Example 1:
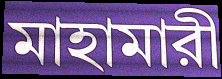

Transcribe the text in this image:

মাহামারী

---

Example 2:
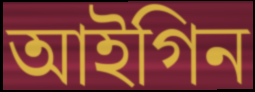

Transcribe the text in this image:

আইগিন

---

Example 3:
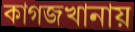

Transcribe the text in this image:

কাগজখানায়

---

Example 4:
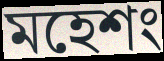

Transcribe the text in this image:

মহেশং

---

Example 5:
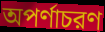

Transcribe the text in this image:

অপর্ণাচরণ